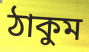
ঠাকুম